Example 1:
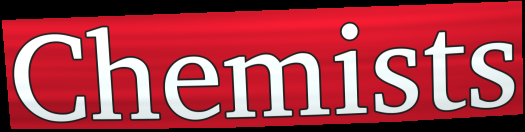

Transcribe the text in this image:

Chemists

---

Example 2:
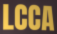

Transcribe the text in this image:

LCCA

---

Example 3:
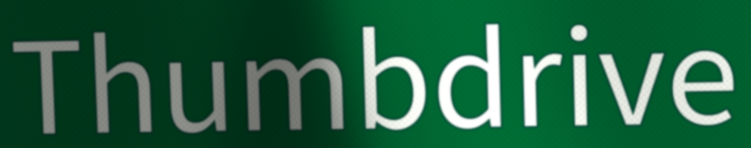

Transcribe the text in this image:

Thumbdrive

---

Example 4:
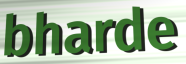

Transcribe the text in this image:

bharde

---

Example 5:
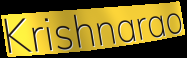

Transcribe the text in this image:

Krishnarao